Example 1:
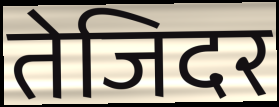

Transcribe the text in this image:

तेजिदर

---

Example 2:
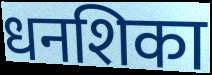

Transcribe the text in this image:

धनशिका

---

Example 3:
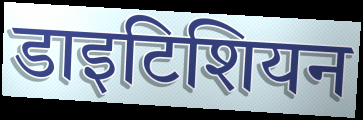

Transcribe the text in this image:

डाइटिशियन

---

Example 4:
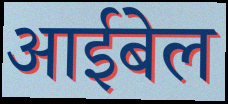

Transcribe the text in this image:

आईबेल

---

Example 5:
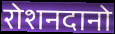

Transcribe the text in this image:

रोशनदानो